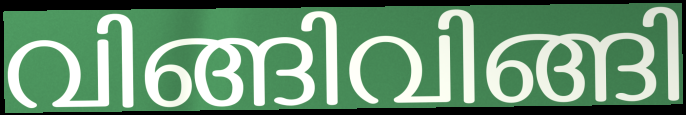
വിങ്ങിവിങ്ങി